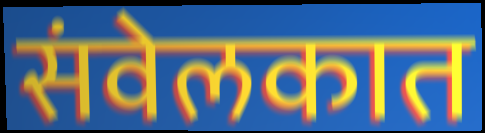
संवेलकात